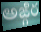
అఙ్గిర